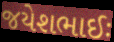
જયેશભાઈઃ